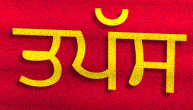
ਤਪੱਸ